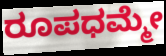
ರೂಪಧಮ್ಮೇ